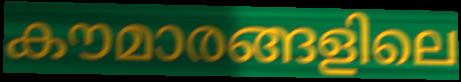
കൗമാരങ്ങളിലെ